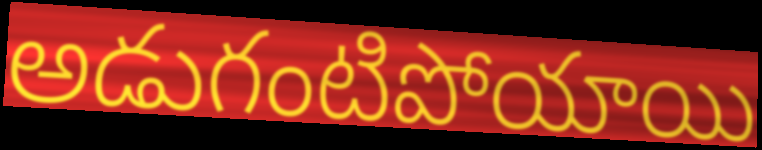
అడుగంటిపోయాయి